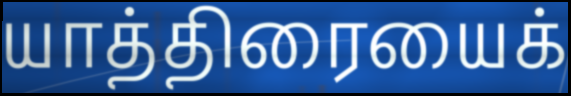
யாத்திரையைக்